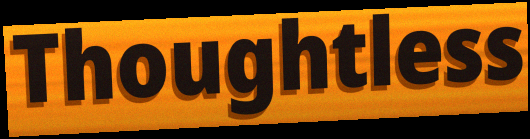
Thoughtless